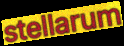
stellarum